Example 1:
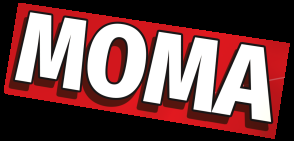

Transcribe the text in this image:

MOMA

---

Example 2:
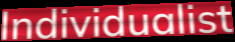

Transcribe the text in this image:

Individualist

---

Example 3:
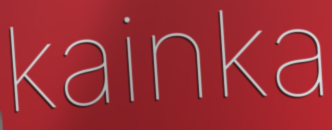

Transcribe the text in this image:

kainka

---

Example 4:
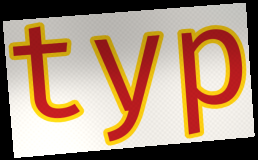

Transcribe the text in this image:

typ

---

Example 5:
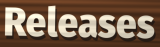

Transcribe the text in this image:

Releases